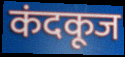
कंदकूज